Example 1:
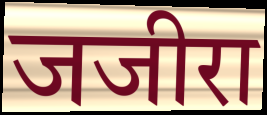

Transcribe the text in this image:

जजीरा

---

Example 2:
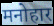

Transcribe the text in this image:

मनोहार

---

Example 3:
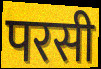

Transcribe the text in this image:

परसी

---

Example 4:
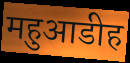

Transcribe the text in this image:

महुआडीह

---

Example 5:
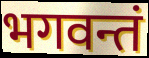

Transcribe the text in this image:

भगवन्तं